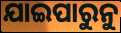
ଯାଇପାରୁନୁ